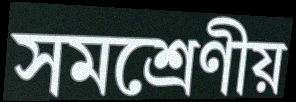
সমশ্রেণীয়